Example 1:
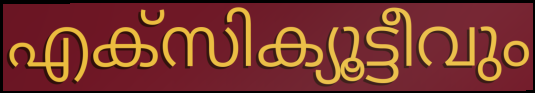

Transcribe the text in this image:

എക്സിക്യൂട്ടീവും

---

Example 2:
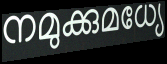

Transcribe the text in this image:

നമുക്കുമധ്യേ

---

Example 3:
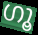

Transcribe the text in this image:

ഗൂ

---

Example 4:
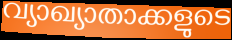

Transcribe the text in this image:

വ്യാഖ്യാതാക്കളുടെ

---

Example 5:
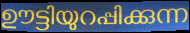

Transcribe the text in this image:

ഊട്ടിയുറപ്പിക്കുന്ന